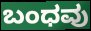
ಬಂಧವು